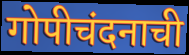
गोपीचंदनाची